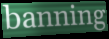
banning